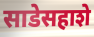
साडेसहाशे